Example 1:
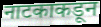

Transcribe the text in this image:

नाटकाकडून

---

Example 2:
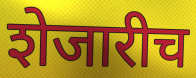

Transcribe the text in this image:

शेजारीच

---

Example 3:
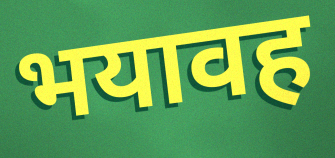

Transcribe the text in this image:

भयावह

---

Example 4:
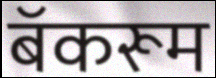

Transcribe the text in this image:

बॅकरूम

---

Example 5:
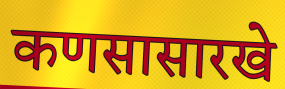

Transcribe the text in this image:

कणसासारखे